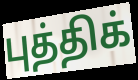
புத்திக்